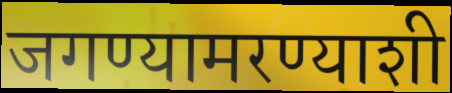
जगण्यामरण्याशी